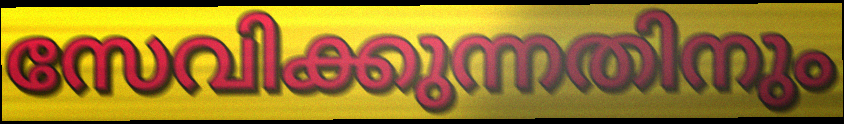
സേവിക്കുന്നതിനും